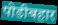
पोडीबहार